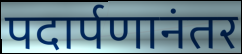
पदार्पणानंतर